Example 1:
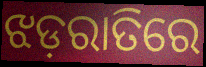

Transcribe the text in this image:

ଝଡ଼ରାତିରେ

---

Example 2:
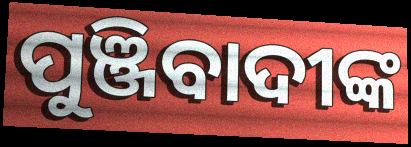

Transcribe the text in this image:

ପୁଞ୍ଜିବାଦୀଙ୍କ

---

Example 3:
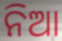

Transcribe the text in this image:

ନିଆ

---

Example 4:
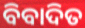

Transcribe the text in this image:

ବିବାଦିତ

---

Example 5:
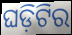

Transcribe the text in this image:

ଘଡ଼ିଟିର